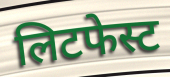
लिटफेस्ट